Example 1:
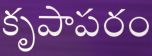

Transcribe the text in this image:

కృపాపరం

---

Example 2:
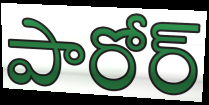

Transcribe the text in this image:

పారోర్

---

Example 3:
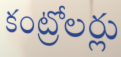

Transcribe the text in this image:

కంట్రోలర్లు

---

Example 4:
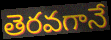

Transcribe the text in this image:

తెరవగానే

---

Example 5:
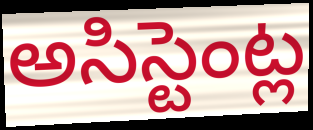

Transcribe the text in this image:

అసిస్టెంట్ల